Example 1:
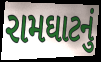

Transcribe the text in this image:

રામઘાટનું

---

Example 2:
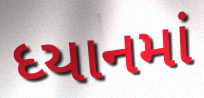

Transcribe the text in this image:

ધ્યાનમાં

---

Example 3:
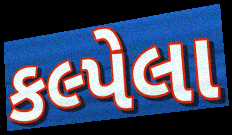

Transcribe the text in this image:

કલ્પેલા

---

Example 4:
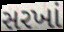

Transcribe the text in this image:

સરખાં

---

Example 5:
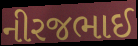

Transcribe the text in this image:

નીરજભાઈ